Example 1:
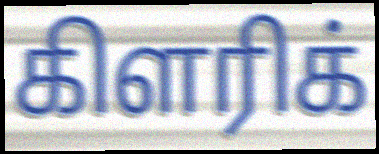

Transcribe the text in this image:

கிளரிக்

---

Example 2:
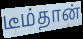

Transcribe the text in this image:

டீம்தான்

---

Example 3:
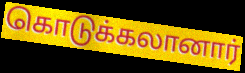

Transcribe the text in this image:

கொடுக்கலானார்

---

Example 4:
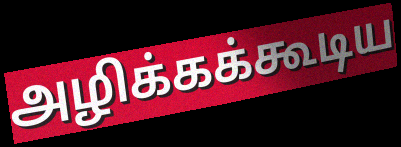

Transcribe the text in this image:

அழிக்கக்கூடிய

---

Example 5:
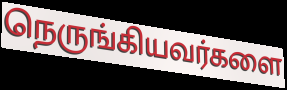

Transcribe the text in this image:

நெருங்கியவர்களை